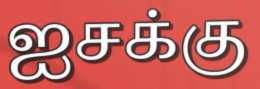
ஐசக்கு